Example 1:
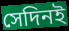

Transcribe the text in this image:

সেদিনই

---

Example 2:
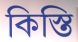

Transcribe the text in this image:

কিস্তি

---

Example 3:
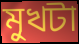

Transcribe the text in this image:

মুখটা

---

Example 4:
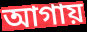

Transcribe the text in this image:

আগায়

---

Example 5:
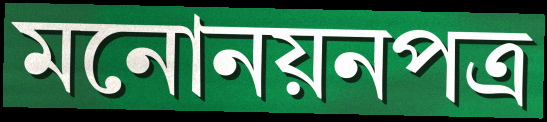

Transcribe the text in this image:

মনোনয়নপত্র